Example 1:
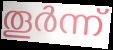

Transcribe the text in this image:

തൂർന്ന്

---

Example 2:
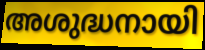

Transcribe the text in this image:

അശുദ്ധനായി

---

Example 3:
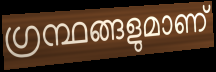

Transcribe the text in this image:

ഗ്രന്ഥങ്ങളുമാണ്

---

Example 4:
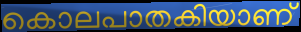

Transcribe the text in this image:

കൊലപാതകിയാണ്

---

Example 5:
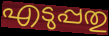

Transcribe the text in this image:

എടുപ്പതു